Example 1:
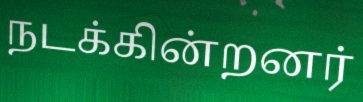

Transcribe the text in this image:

நடக்கின்றனர்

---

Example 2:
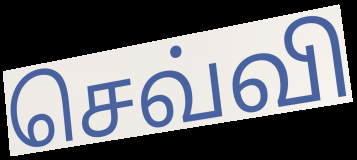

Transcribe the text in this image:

செவ்வி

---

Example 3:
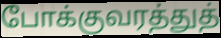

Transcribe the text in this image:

போக்குவரத்துத்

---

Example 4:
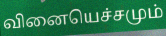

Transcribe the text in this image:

வினையெச்சமும்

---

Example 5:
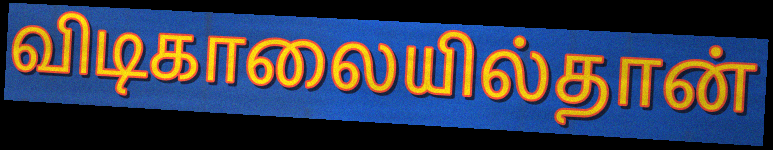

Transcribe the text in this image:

விடிகாலையில்தான்